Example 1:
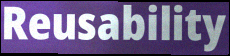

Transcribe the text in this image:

Reusability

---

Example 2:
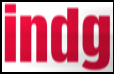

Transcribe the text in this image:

indg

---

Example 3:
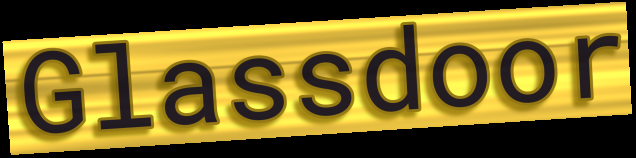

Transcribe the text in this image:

Glassdoor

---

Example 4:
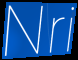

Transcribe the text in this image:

Nri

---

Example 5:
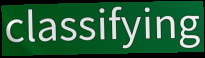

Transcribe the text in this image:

classifying